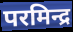
परमिन्द्र